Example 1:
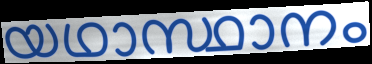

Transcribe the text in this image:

യഥാസ്ഥാനം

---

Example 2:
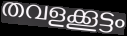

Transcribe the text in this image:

തവളക്കൂട്ടം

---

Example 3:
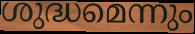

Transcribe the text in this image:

ശുദ്ധമെന്നും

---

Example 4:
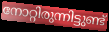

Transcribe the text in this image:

നോറ്റിരുന്നിട്ടുണ്ട്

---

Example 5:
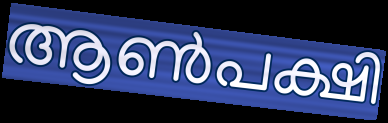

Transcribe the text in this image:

ആൺപക്ഷി